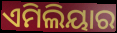
ଏମିଲିୟାର